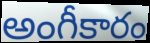
అంగీకారం